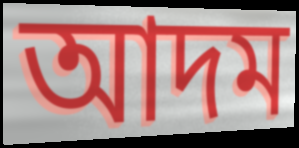
আদম